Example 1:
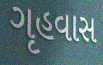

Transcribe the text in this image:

ગૃહવાસ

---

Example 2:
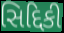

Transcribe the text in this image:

સિદ્દિકી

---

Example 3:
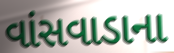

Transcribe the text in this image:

વાંસવાડાના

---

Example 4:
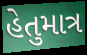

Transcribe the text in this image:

હેતુમાત્ર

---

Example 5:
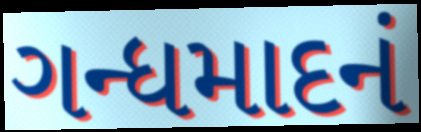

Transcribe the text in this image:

ગન્ધમાદનં